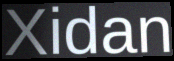
Xidan